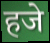
हजे